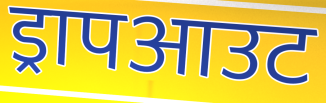
ड्रापआउट